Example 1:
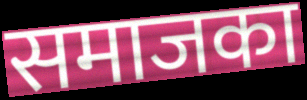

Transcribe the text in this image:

समाजका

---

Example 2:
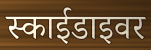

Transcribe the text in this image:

स्काईडाइवर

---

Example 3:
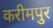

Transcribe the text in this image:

करीमपुर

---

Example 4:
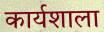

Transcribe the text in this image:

कार्यशाला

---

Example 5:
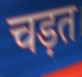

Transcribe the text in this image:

चड़त